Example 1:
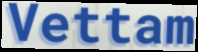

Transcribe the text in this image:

Vettam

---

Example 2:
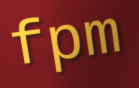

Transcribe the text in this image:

fpm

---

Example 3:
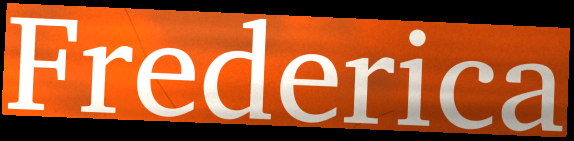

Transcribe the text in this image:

Frederica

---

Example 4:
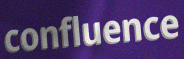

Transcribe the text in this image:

confluence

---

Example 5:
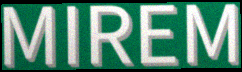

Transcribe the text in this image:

MIREM